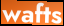
wafts